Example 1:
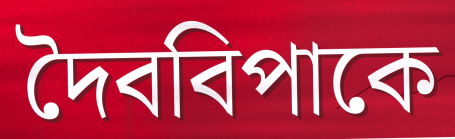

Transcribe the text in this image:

দৈববিপাকে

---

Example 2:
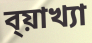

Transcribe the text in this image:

ব্য়াখ্যা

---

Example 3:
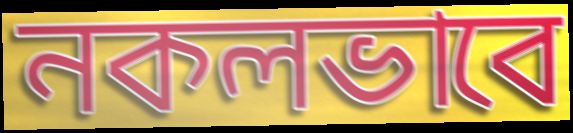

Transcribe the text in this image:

নকলভাবে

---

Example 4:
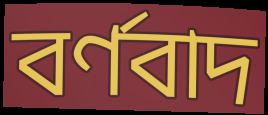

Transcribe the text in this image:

বর্ণবাদ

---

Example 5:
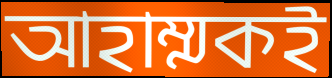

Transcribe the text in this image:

আহাম্মকই